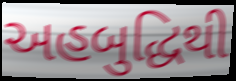
અહબુદ્ધિથી